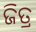
ଜିତ୍ର